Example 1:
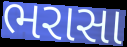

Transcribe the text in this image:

ભરાસા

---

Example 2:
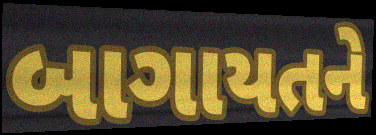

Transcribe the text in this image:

બાગાયતને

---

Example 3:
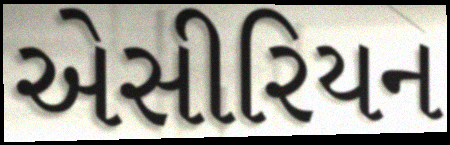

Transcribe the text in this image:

એસીરિયન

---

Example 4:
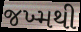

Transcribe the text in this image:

જખ્મથી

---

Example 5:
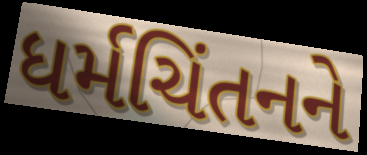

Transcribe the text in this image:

ધર્મચિંતનને